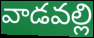
వాడవల్లి